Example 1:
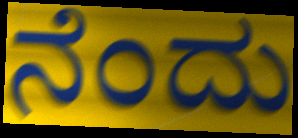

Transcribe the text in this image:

ನೆಂದು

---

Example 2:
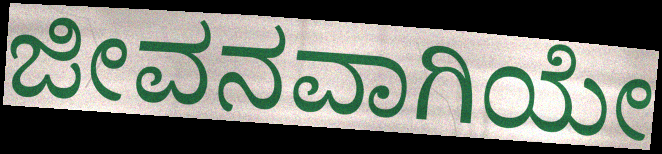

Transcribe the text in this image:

ಜೀವನವಾಗಿಯೇ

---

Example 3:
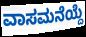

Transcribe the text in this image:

ವಾಸಮನೆಯ್ದೆ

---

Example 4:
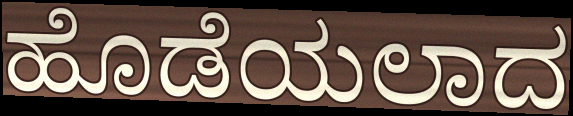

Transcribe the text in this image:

ಹೊಡೆಯಲಾದ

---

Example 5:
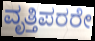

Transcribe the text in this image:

ವೃತ್ತಿಪರರೇ